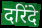
दरिंदे